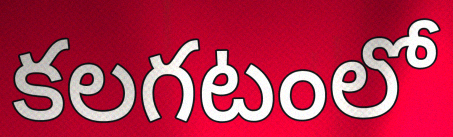
కలగటంలో